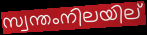
സ്വന്തംനിലയില്